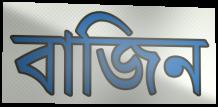
বাজিন